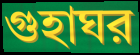
গুহাঘর